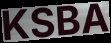
KSBA